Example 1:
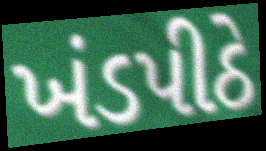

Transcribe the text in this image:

ખંડપીઠે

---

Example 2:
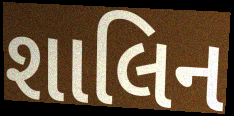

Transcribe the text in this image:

શાલિન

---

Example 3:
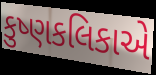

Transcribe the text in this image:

કુષ્ણકલિકાએ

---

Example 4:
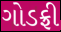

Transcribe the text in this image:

ગોડફ્રી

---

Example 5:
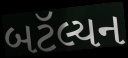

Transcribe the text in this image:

બટૅલ્યન